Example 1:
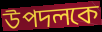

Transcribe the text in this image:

উপদলকে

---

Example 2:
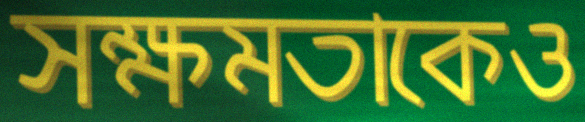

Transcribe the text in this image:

সক্ষমতাকেও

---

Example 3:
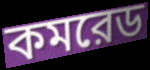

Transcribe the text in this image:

কমরেড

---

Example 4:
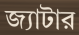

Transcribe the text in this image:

জ্যাটার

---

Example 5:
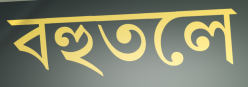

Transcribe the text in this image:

বহুতলে